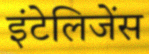
इंटेलिजेंस